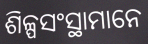
ଶିଳ୍ପସଂସ୍ଥାମାନେ